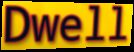
Dwell